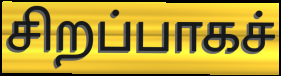
சிறப்பாகச்